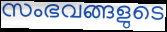
സംഭവങ്ങളുടെ